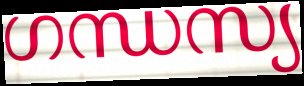
ഗന്ധസ്യ